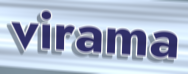
virama